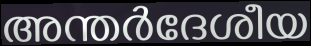
അന്തർദേശീയ